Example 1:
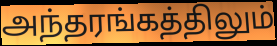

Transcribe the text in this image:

அந்தரங்கத்திலும்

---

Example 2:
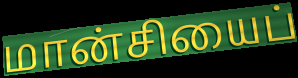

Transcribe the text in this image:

மான்சியைப்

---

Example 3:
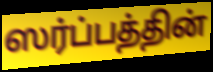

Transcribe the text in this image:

ஸர்ப்பத்தின்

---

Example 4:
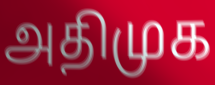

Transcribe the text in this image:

அதிமுக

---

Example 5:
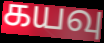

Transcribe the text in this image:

கயவு